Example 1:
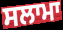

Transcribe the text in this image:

ਸਲਾਮਾ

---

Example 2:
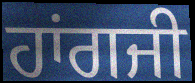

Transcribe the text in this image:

ਹਾਂਗਜੀ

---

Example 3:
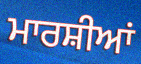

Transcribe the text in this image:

ਮਾਰਸ਼ੀਆਂ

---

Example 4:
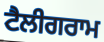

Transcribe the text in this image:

ਟੈਲੀਗਰਾਮ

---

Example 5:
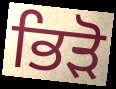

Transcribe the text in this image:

ਭਿੜੋ